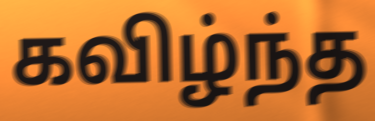
கவிழ்ந்த